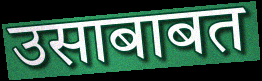
उसाबाबत